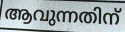
ആവുന്നതിന്